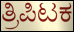
ತ್ರಿಪಿಟಕ